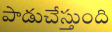
పాడుచేస్తుంది